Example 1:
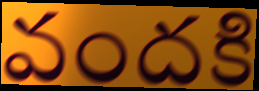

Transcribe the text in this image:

వందకి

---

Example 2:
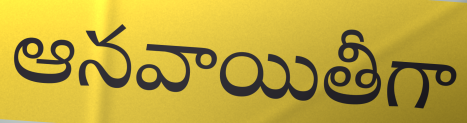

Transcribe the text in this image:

ఆనవాయితీగా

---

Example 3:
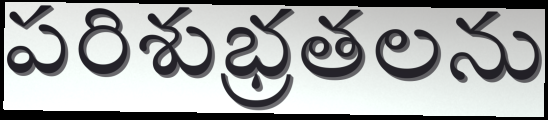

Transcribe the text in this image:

పరిశుభ్రతలను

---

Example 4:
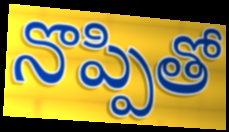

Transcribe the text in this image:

నొప్పితో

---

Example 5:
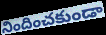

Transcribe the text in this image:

నిందించకుండా